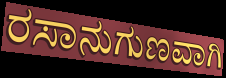
ರಸಾನುಗುಣವಾಗಿ